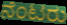
ನೆಂಟರು